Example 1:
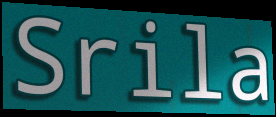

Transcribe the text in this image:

Srila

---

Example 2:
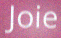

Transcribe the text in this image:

Joie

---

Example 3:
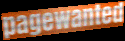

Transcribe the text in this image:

pagewanted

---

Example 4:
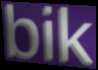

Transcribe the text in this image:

bik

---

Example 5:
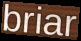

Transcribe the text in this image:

briar